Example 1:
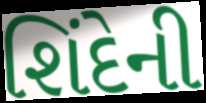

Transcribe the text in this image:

શિંદેની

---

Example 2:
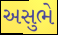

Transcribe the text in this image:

અસુભે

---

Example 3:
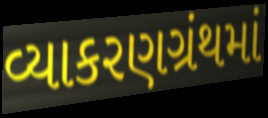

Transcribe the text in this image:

વ્યાકરણગ્રંથમાં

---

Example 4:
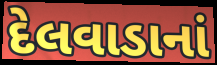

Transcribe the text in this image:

દેલવાડાનાં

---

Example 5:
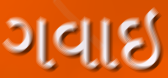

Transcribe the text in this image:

ગવાઇ